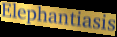
Elephantiasis